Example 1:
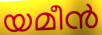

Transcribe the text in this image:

യമീൻ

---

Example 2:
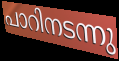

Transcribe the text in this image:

പാറിനടന്നു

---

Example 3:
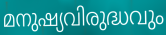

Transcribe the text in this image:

മനുഷ്യവിരുദ്ധവും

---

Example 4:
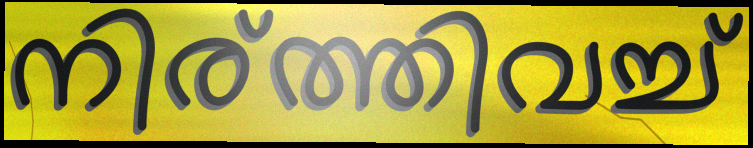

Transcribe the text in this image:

നിര്ത്തിവച്ച്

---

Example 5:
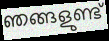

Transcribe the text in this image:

ഞങ്ങളുണ്ട്